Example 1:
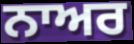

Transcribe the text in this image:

ਨਾਅਰ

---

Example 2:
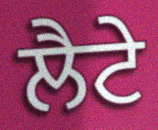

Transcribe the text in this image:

ਲੈਟੇ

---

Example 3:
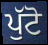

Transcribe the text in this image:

ਪੁੱਟੋ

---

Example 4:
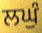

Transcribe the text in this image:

ਲਘੁੰ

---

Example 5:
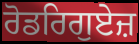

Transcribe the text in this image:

ਰੋਡਰਿਗੁਏਜ਼